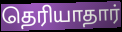
தெரியாதார்